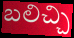
బలిచ్చి